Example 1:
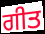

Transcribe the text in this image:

ਗੀਤ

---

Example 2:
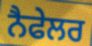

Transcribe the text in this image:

ਨੈਫੇਲਰ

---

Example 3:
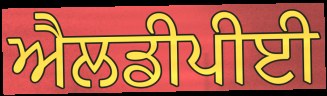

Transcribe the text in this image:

ਐਲਡੀਪੀਈ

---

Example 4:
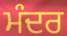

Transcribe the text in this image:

ਮੰਦਰ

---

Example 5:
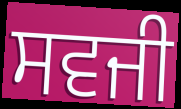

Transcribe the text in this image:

ਸਵਜੀ